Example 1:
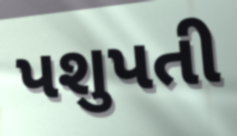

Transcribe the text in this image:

પશુપતી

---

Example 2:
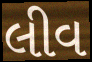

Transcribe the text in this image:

લીવ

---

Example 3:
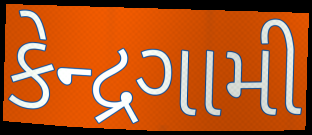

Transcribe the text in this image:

કેન્દ્રગામી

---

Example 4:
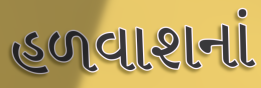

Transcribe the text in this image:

હળવાશનાં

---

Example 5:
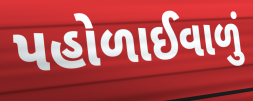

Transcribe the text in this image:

પહોળાઈવાળું